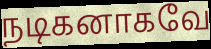
நடிகனாகவே